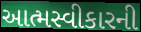
આત્મસ્વીકારની